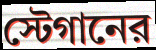
স্টেগানের